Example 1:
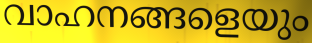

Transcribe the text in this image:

വാഹനങ്ങളെയും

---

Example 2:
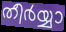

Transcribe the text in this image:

തീർയ്യാ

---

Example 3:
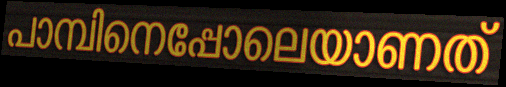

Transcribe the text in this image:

പാമ്പിനെപ്പോലെയാണത്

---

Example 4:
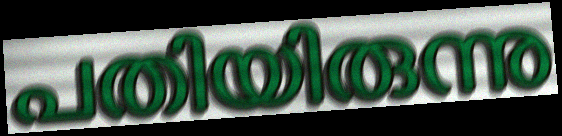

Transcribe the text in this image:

പതിയിരുന്നു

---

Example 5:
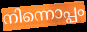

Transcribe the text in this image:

നിന്നൊപ്പം